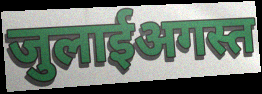
जुलाईअगस्त